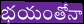
భయంతోనా